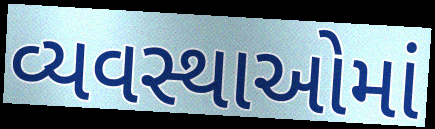
વ્યવસ્થાઓમાં